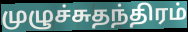
முழுச்சுதந்திரம்